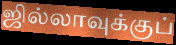
ஜில்லாவுக்குப்